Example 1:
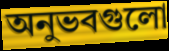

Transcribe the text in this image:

অনুভবগুলো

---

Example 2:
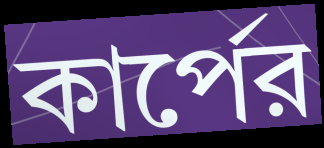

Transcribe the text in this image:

কার্পের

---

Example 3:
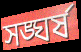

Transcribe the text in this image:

সঙ্ঘর্ষ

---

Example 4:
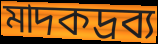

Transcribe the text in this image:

মাদকদ্রব্য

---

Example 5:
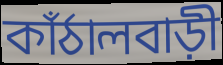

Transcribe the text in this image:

কাঁঠালবাড়ী